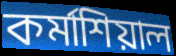
কর্মাশিয়াল